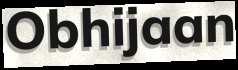
Obhijaan